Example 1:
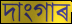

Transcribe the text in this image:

দাংগাৰ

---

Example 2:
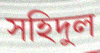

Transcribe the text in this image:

সহিদুল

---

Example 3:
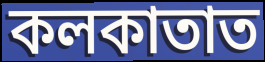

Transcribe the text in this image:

কলকাতাত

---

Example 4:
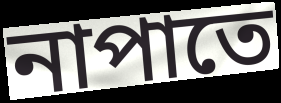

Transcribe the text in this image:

নাপাতে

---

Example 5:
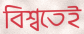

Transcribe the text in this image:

বিশ্বতেই